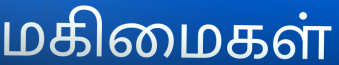
மகிமைகள்